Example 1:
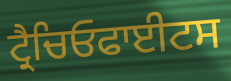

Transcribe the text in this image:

ਟ੍ਰੈਚਿਓਫਾਈਟਸ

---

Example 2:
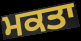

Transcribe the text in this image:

ਮਕਤਾ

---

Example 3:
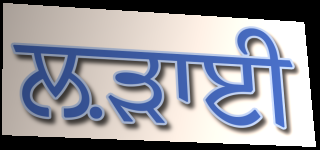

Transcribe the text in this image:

ਲ਼ੜਾਈ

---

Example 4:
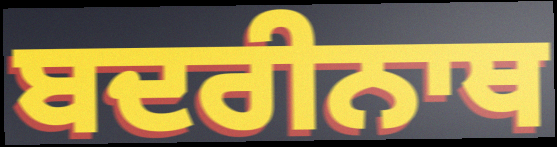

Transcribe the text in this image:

ਬਦਰੀਨਾਥ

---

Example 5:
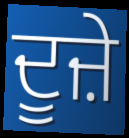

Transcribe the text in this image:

ਦੂਜ਼ੇ